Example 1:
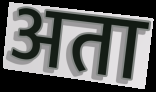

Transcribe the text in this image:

अता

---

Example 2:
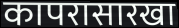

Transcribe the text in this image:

कापरासारखा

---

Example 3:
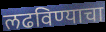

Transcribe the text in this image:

लढविण्याचा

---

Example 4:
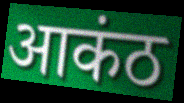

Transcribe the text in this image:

आकंठ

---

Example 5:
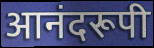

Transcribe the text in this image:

आनंदरूपी